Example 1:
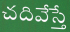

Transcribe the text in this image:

చదివేస్తే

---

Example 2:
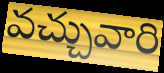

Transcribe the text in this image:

వచ్చువారి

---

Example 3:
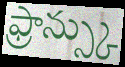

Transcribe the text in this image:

ఫ్రాన్స్కు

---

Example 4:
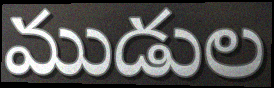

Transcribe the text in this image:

ముడుల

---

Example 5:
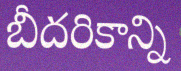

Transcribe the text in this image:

బీదరికాన్ని